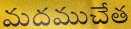
మదముచేత